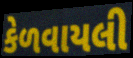
કેળવાયલી